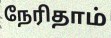
நேரிதாம்